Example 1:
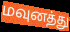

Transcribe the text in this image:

மவுனத்து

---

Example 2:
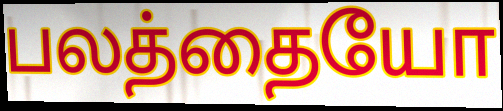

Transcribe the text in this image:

பலத்தையோ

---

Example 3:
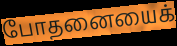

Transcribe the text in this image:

போதனையைக்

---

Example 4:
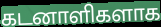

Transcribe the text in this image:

கடனாளிகளாக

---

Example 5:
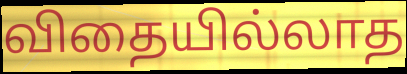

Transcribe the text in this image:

விதையில்லாத